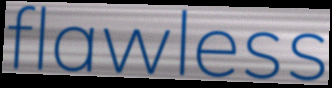
flawless